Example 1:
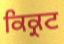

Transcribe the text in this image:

ਕਿਕ੍ਰਟ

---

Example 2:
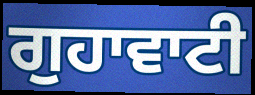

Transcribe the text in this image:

ਗੁਹਾਵਾਟੀ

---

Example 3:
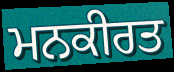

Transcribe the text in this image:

ਮਨਕੀਰਤ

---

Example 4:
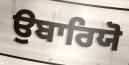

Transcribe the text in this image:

ਉਬਾਰਿਯੋ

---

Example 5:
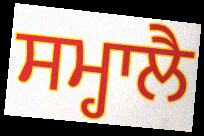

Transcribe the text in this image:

ਸਮ੍ਹ੍ਹਾਲੈ